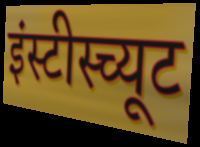
इंस्टीस्च्यूट